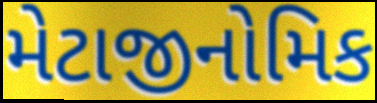
મેટાજીનોમિક